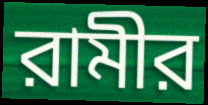
রামীর